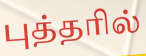
புத்தரில்